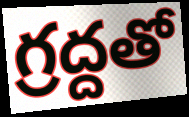
గ్రద్దతో